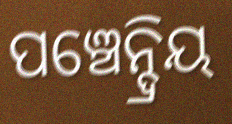
ପଞ୍ଚେନ୍ଦ୍ରିୟ